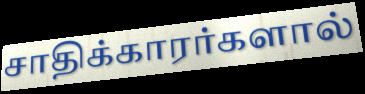
சாதிக்காரர்களால்